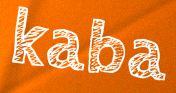
kaba